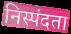
निस्पंदता